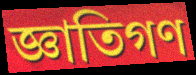
জ্ঞাতিগণ